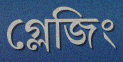
গ্লেজিং